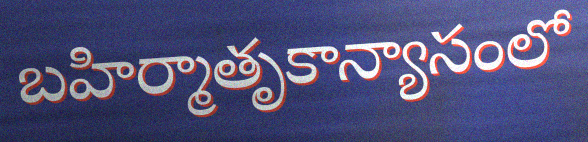
బహిర్మాతృకాన్యాసంలో